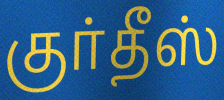
குர்தீஸ்